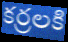
కర్రలకి